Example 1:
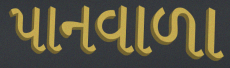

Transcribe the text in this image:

પાનવાળા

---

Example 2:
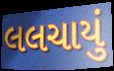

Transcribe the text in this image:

લલચાયું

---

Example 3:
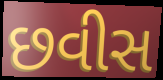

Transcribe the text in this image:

છવીસ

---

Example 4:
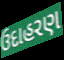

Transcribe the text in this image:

ઉદાહરણ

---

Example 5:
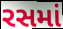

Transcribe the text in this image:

રસમાં